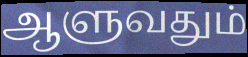
ஆளுவதும்